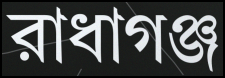
রাধাগঞ্জ